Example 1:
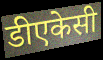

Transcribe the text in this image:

डीएकेसी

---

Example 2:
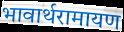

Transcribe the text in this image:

भावार्थरामायण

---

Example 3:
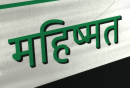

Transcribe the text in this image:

महिष्मत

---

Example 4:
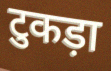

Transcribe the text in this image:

टुकड़ा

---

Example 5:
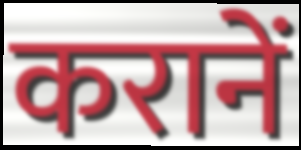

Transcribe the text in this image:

करानें